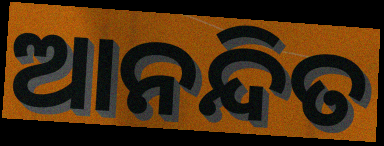
ଆନନ୍ଦିତ